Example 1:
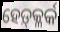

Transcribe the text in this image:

ହେଡ଼୍‍କ୍ଳର୍କ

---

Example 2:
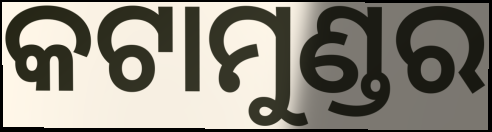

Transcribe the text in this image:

କଟାମୁଣ୍ଡର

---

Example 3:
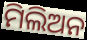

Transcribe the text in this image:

ମିଲିଅନ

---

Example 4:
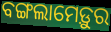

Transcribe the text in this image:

ବଙ୍ଗଲାମେଡ଼ୁର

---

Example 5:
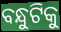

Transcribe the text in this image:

ବନ୍ଧୁଟିକୁ